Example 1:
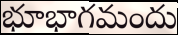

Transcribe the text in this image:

భూభాగమందు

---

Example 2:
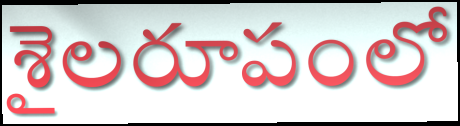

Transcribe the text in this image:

శైలరూపంలో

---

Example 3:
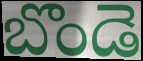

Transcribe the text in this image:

బొండె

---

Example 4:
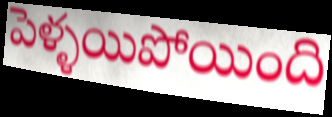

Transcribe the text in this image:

పెళ్ళయిపోయింది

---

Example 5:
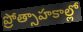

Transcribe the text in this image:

ప్రోత్సాహకాల్లో